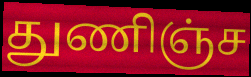
துணிஞ்ச